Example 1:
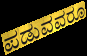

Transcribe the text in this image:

ಪಡುವವರೂ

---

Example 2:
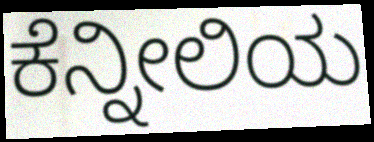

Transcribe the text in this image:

ಕೆನ್ನೀಲಿಯ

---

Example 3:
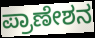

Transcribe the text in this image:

ಪ್ರಾಣೇಶನ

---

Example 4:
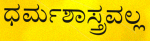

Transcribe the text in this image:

ಧರ್ಮಶಾಸ್ತ್ರವಲ್ಲ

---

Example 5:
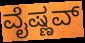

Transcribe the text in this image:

ವೈಷ್ಣವ್